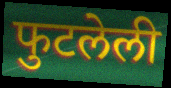
फुटलेली